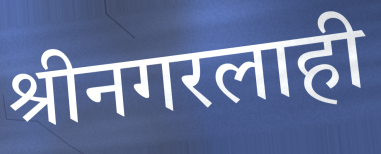
श्रीनगरलाही